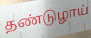
தண்டுழாய்